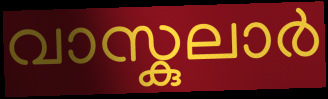
വാസ്കുലാർ